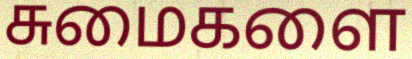
சுமைகளை